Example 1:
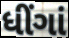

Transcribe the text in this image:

ધીંગાં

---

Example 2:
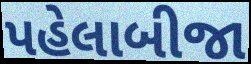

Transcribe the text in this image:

પહેલાબીજા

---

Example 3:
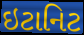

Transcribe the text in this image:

ઇટાનિટ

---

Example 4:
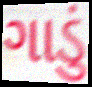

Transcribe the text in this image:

ગાડું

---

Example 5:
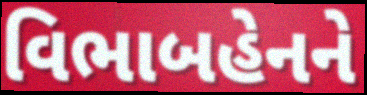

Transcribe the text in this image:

વિભાબહેનને